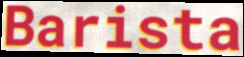
Barista